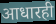
आधारही